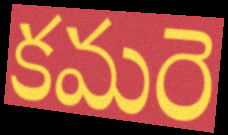
కమరె